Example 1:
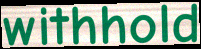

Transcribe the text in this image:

withhold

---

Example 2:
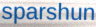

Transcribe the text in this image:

sparshun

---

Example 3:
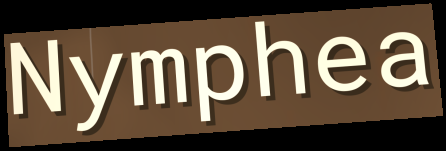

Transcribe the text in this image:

Nymphea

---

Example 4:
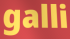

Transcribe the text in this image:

galli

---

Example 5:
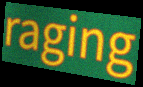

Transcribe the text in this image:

raging